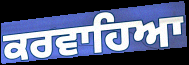
ਕਰਵਾਹਿਆ